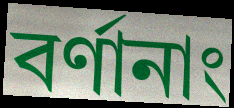
বর্ণানাং